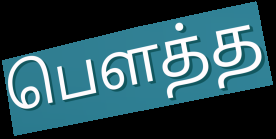
பௌத்த